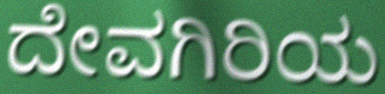
ದೇವಗಿರಿಯ